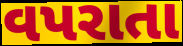
વપરાતા